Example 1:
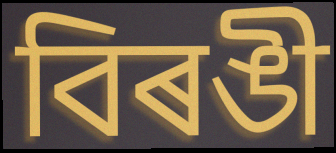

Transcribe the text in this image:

বিৰঙী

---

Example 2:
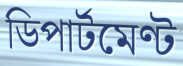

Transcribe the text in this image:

ডিপাৰ্টমেণ্ট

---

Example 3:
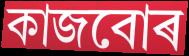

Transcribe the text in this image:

কাজবোৰ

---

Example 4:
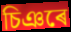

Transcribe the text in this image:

চিঞৰে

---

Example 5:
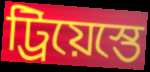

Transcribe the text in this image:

ট্ৰিয়েস্তে